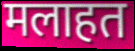
मलाहत